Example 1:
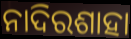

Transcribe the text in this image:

ନାଦିରଶାହା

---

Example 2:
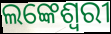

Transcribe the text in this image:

ଲଙ୍କେଶ୍ୱରୀ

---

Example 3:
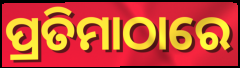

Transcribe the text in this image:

ପ୍ରତିମାଠାରେ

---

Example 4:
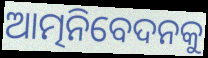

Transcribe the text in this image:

ଆତ୍ମନିବେଦନକୁ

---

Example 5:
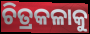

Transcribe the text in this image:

ଚିତ୍ରକଳାକୁ